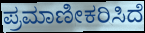
ಪ್ರಮಾಣೀಕರಿಸಿದೆ